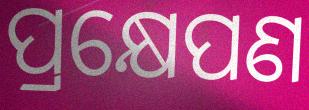
ପ୍ରକ୍ଷେପଣ